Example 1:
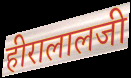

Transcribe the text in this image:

हीरालालजी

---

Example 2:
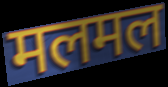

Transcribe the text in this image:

मलमल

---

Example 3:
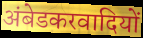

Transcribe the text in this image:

अंबेडकरवादियों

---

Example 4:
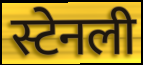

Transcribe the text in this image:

स्टेनली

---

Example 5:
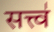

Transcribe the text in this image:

सत्त्व॑